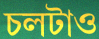
চলটাও